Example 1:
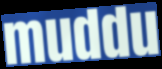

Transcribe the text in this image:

muddu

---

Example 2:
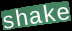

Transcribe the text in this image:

shake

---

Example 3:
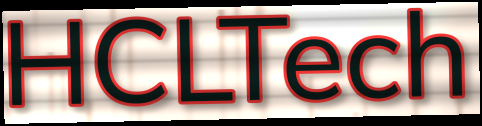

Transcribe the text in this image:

HCLTech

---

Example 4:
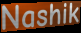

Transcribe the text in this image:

Nashik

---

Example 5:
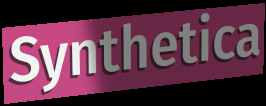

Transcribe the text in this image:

Synthetica